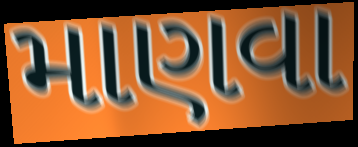
માણવા